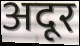
अदूर